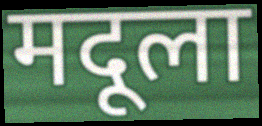
मदूला